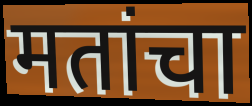
मतांचा